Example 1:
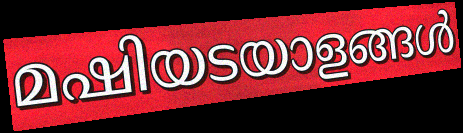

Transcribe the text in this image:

മഷിയടയാളങ്ങൾ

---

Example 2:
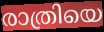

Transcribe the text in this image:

രാത്രിയെ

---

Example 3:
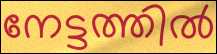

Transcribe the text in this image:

നേട്ടത്തിൽ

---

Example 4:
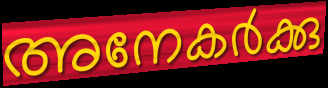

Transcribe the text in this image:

അനേകർക്കു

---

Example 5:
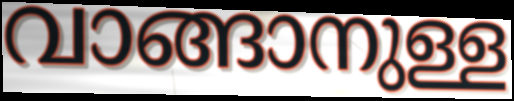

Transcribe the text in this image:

വാങ്ങാനുള്ള